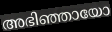
അഭിഞ്ഞായോ